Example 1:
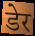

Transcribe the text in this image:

डेर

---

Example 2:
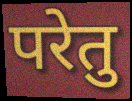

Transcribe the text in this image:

परेतु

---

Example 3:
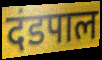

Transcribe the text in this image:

दंडपाल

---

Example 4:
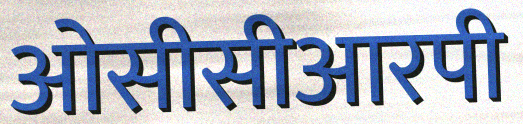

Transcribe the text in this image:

ओसीसीआरपी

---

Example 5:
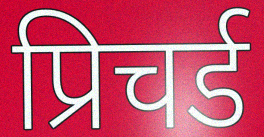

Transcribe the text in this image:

प्रिचर्ड